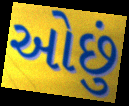
ઓછું